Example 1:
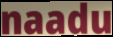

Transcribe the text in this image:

naadu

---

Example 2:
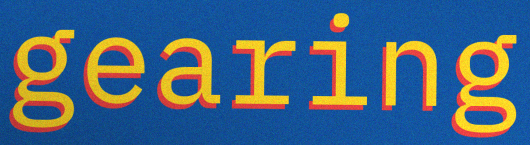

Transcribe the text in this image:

gearing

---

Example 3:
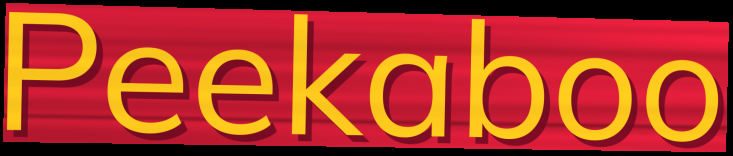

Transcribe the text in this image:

Peekaboo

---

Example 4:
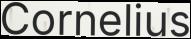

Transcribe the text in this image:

Cornelius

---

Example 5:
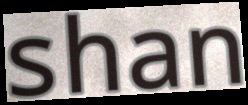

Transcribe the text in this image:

shan